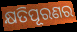
କ୍ଷତିପୂରଣର